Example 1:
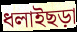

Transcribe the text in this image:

ধলাইছড়া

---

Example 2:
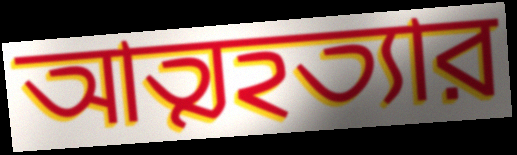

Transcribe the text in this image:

আত্মহত্যার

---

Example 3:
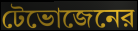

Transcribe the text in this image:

টেভোজেনের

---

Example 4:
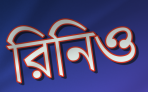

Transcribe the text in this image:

রিনিও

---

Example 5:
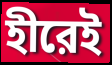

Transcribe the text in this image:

হীরেই